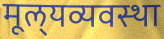
मूल्यव्यवस्था